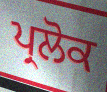
ਪ੍ਰਲੋਕ